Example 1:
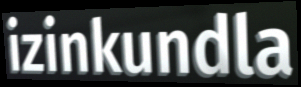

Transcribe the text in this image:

izinkundla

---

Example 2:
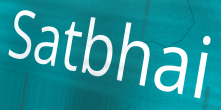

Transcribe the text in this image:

Satbhai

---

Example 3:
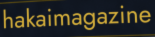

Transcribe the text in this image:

hakaimagazine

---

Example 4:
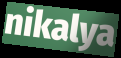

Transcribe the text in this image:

nikalya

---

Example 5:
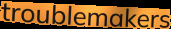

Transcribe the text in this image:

troublemakers